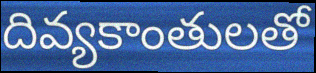
దివ్యకాంతులతో